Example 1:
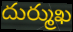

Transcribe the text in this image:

దుర్ముఖ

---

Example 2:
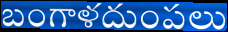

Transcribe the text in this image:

బంగాళదుంపలు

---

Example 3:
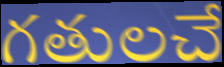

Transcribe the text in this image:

గతులచే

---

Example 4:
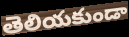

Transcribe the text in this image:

తెలియకుండా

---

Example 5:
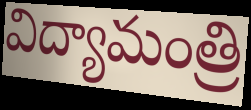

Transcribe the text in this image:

విద్యామంత్రి